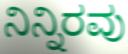
ನಿನ್ನಿರವು